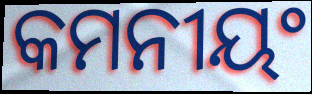
କମନୀୟଂ